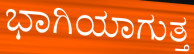
ಭಾಗಿಯಾಗುತ್ತ